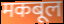
मकबूल